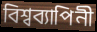
বিশ্বব্যাপিনী